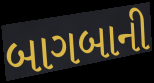
બાગબાની